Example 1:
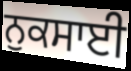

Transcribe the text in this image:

ਨੁਕਸਾਈ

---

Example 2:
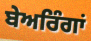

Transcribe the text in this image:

ਬੇਅਰਿੰਗਾਂ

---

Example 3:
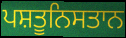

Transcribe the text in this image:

ਪਸ਼ਤੂਨਿਸਤਾਨ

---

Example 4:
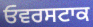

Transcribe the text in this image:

ਓਵਰਸਟਾਕ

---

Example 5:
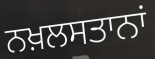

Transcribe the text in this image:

ਨਖ਼ਲਸਤਾਨਾਂ